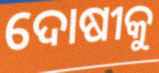
ଦୋଷୀକୁ